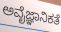
ಅವೈಜ್ಞಾನಿಕತೆ